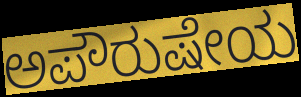
ಅಪೌರುಷೇಯ